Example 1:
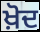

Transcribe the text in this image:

ਖ਼ੋਦ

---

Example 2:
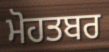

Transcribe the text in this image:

ਮੋਹਤਬਰ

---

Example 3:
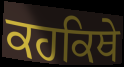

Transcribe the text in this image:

ਕਹਕਿਥੇ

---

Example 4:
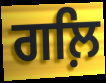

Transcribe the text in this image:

ਗਲ਼ਿ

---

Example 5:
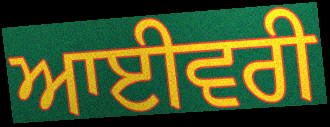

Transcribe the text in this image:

ਆਈਵਰੀ